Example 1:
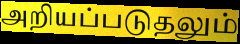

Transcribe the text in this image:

அறியப்படுதலும்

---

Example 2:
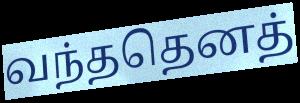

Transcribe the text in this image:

வந்ததெனத்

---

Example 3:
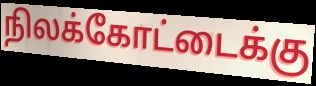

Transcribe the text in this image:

நிலக்கோட்டைக்கு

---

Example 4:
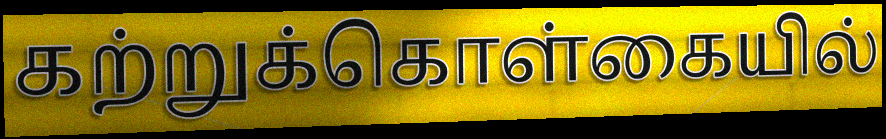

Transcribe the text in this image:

கற்றுக்கொள்கையில்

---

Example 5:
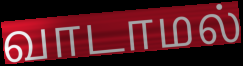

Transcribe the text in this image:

வாடாமல்